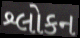
શ્લોકન